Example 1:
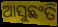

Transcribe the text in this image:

ଆସୁଛଂତି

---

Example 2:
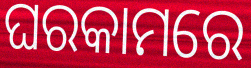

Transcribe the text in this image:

ଘରକାମରେ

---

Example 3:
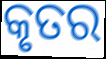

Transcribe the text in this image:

କୃତର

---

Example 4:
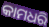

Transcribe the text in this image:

କାମଧରି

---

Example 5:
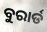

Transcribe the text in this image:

ବୁରାର୍ଡ